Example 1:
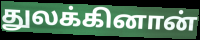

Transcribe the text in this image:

துலக்கினான்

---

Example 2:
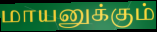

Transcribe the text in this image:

மாயனுக்கும்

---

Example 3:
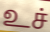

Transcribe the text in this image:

உச்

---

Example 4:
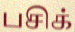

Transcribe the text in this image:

பசிக்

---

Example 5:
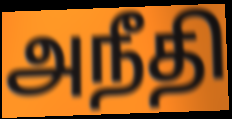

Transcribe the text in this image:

அநீதி